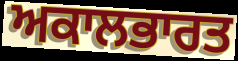
ਅਕਾਲਭਾਰਤ